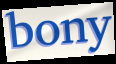
bony